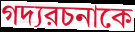
গদ্যরচনাকে